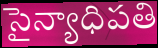
సైన్యాధిపతి